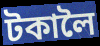
টকালৈ